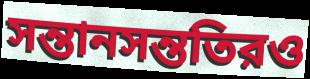
সন্তানসন্ততিরও